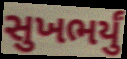
સુખભર્યું